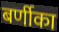
बर्णीका